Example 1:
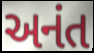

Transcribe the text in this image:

અનંત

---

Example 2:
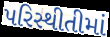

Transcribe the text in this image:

પરિસ્થીતીમાં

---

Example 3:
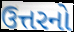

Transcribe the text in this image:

ઉત્તરનો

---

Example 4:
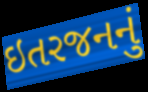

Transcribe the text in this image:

ઇતરજનનું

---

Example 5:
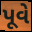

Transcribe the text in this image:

પૂવે